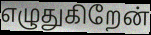
எழுதுகிறேன்